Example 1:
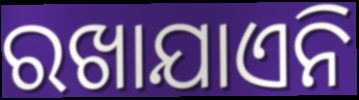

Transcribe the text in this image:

ରଖାଯାଏନି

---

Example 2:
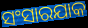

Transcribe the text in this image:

ସଂସାରଯାକ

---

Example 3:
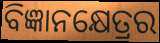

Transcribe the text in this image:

ବିଜ୍ଞାନକ୍ଷେତ୍ରର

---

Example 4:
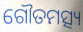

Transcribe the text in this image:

ଗୌତମତ୍ସ୍ୟ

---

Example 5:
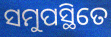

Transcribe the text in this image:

ସମୁପସ୍ଥିତେ